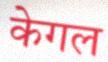
केगल